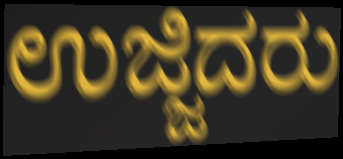
ಉಜ್ಜಿದರು